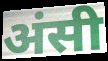
अंसी